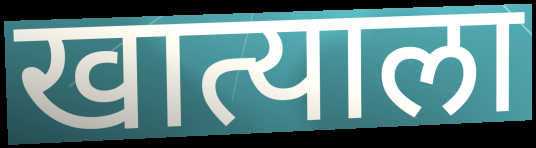
खात्याला